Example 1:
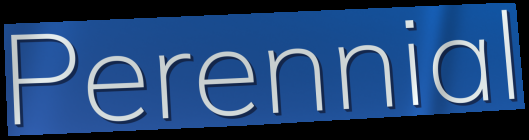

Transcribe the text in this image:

Perennial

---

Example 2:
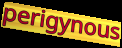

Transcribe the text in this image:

perigynous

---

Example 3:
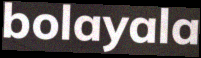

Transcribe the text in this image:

bolayala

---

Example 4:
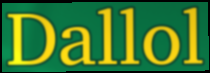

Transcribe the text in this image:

Dallol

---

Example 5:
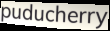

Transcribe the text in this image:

puducherry